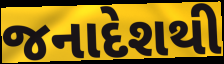
જનાદેશથી